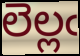
లెల్లఁ